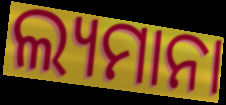
ଲ୍ୟମାନା